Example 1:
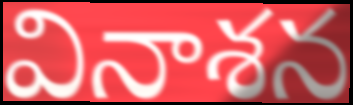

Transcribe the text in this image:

వినాశన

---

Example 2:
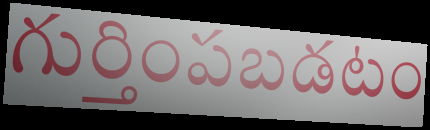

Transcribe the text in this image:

గుర్తింపబడటం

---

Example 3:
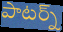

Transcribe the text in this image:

పాటర్న్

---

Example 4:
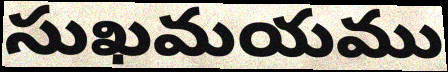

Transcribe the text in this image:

సుఖమయము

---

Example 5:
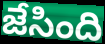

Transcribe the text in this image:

జేసింది